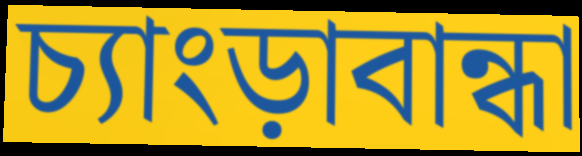
চ্যাংড়াবান্ধা